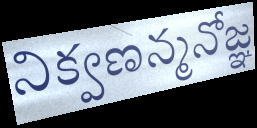
నిక్వణన్మనోజ్ఞ